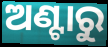
ଅଣ୍ଟାରୁ